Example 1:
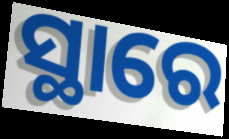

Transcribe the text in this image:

ସ୍ଥାରେ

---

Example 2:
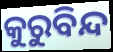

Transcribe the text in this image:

କୁରୁବିନ୍ଦ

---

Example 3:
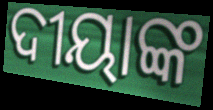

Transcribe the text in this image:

ଦୀୟାଙ୍କ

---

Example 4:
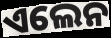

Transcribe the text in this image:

ଏଲେନ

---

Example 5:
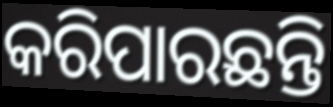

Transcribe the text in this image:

କରିପାରଛନ୍ତି